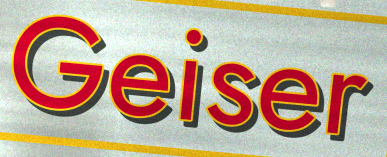
Geiser